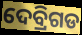
ଦେବ୍ରିଗଡ